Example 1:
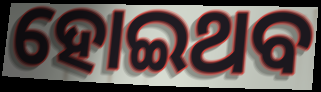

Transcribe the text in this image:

ହୋଇଥବ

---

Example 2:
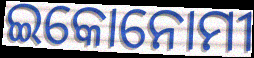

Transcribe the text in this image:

ଇକୋନୋମୀ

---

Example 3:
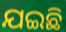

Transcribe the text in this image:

ଯଇଛି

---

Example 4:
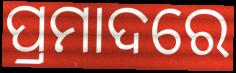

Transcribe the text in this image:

ପ୍ରମାଦରେ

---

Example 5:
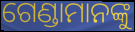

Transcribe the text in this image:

ଗେଣ୍ଡାମାନଙ୍କୁ